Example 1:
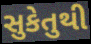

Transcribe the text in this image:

સુકેતુથી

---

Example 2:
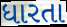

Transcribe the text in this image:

ધારતા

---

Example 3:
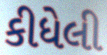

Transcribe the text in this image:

કીધેલી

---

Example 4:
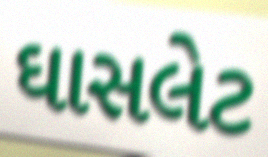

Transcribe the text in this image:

ઘાસલેટ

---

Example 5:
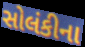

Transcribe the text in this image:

સોલંકીના